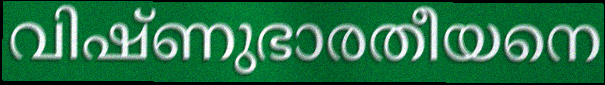
വിഷ്ണുഭാരതീയനെ